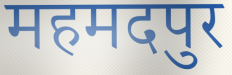
महमदपुर